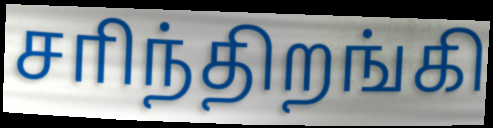
சரிந்திறங்கி